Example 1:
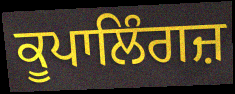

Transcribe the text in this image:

ਕੂਪਾਲਿੰਗਜ਼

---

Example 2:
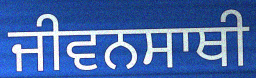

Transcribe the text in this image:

ਜੀਵਨਸਾਥੀ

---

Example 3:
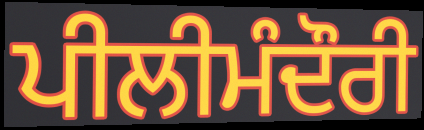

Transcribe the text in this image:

ਪੀਲੀਮੰਦੌਰੀ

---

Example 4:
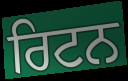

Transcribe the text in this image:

ਰਿਟਨ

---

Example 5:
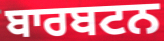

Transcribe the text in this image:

ਬਾਰਬਟਨ